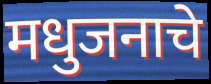
मधुजनाचे